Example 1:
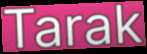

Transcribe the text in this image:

Tarak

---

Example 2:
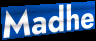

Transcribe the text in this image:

Madhe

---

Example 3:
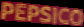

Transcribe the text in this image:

PEPSICO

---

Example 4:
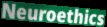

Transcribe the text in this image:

Neuroethics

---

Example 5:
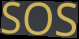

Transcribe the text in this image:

SOS